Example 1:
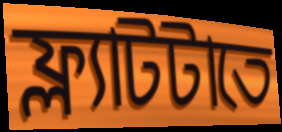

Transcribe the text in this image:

ফ্ল্যাটটাতে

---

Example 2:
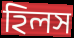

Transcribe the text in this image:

হিলস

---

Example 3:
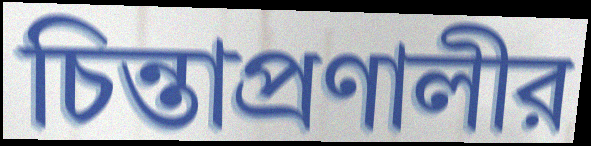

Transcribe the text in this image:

চিন্তাপ্রণালীর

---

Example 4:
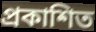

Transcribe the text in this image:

প্রকাশিত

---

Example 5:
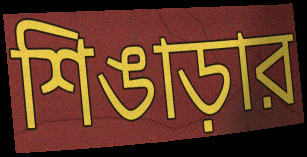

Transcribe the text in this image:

শিঙাড়ার